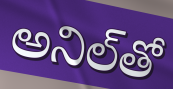
అనిల్‌తో